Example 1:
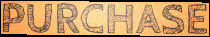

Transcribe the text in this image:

PURCHASE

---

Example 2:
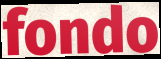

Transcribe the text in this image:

fondo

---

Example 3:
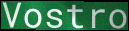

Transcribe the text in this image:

Vostro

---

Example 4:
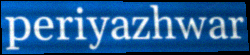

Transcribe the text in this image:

periyazhwar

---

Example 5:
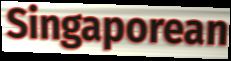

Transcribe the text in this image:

Singaporean